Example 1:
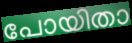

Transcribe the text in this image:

പോയിതാ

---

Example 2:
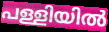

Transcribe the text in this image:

പള്ളിയിൽ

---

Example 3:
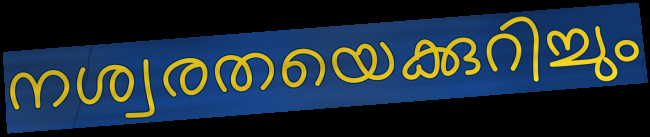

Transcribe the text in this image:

നശ്വരതയെക്കുറിച്ചും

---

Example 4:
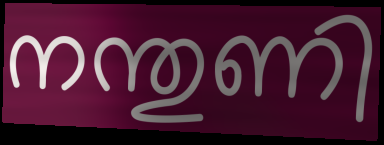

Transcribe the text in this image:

നന്തുണി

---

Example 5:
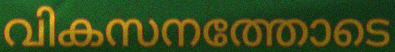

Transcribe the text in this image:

വികസനത്തോടെ